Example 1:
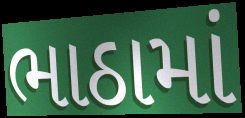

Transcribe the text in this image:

ભાઠામાં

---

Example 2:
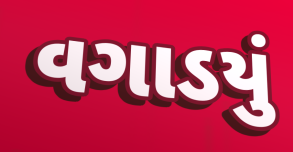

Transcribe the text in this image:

વગાડયું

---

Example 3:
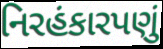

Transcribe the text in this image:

નિરહંકારપણું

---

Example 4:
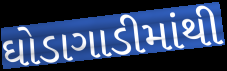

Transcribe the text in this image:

ઘોડાગાડીમાંથી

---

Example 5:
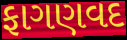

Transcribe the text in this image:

ફાગણવદ